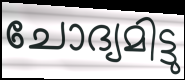
ചോദ്യമിട്ടു